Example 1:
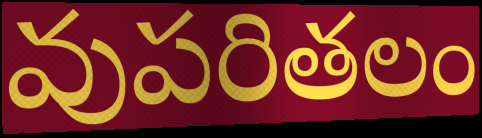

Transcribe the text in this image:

వుపరితలం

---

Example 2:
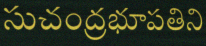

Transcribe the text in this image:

సుచంద్రభూపతిని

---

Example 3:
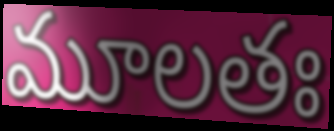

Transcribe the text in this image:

మూలతః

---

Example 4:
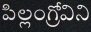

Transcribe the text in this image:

పిల్లంగ్రోవిని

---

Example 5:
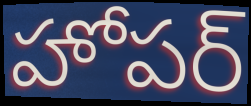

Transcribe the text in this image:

హోపర్